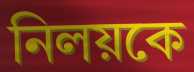
নিলয়কে